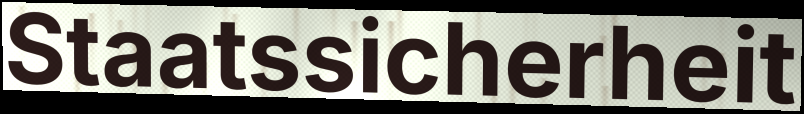
Staatssicherheit